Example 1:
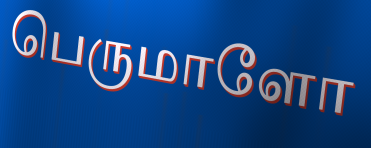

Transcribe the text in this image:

பெருமாளோ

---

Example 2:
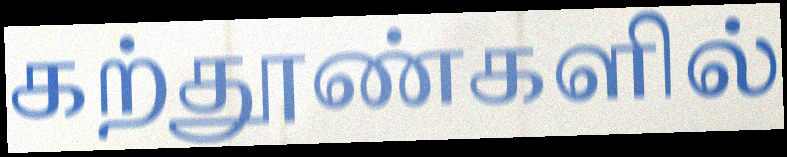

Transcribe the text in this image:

கற்தூண்களில்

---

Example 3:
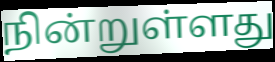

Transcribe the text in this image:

நின்றுள்ளது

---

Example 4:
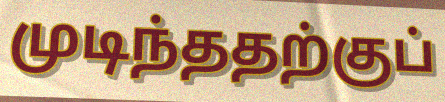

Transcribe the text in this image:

முடிந்ததற்குப்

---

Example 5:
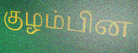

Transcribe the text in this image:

குழம்பின